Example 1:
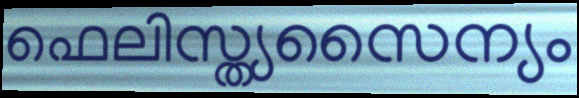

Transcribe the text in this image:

ഫെലിസ്ത്യസൈന്യം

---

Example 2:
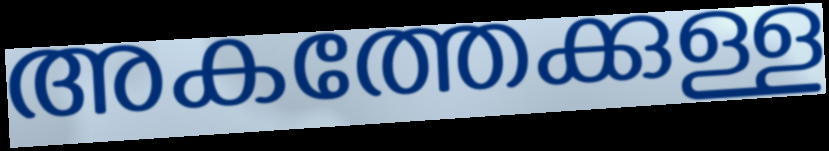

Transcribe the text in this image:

അകത്തേക്കുള്ള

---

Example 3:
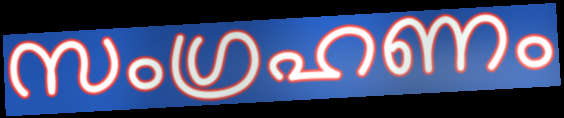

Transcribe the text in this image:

സംഗ്രഹണം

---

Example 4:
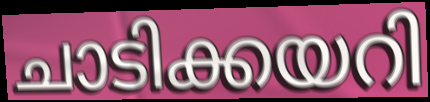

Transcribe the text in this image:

ചാടിക്കയറി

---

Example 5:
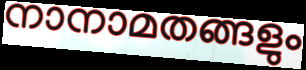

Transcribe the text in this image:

നാനാമതങ്ങളും